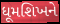
ધૂમશિખને